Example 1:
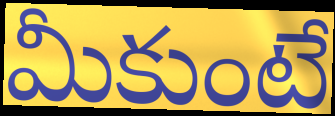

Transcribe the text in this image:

మీకుంటే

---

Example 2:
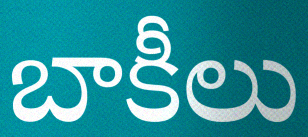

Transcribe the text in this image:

బాకీలు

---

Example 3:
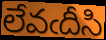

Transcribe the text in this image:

లేవఁదీసి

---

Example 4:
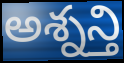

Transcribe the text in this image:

అశ్నన్తి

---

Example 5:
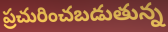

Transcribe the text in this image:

ప్రచురించబడుతున్న